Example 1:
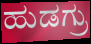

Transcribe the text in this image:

ಹುಡಗ್ರು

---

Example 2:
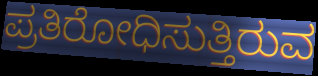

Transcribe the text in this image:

ಪ್ರತಿರೋಧಿಸುತ್ತಿರುವ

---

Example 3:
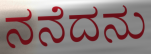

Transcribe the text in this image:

ನನೆದನು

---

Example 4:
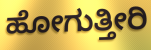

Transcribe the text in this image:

ಹೋಗುತ್ತೀರಿ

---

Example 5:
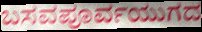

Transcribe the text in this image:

ಬಸವಪೂರ್ವಯುಗದ